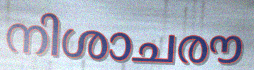
നിശാചരൗ